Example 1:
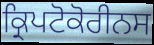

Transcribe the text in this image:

ਕ੍ਰਿਪਟੋਕੋਰੀਨਸ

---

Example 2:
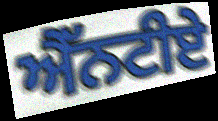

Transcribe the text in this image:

ਐੱਨਟੀਏ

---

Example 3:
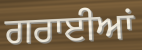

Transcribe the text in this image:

ਗਰਾਈਆਂ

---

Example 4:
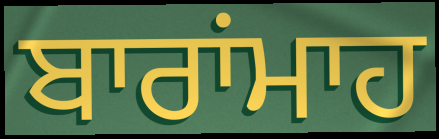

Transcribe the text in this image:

ਬਾਰਾਂਮਾਹ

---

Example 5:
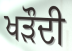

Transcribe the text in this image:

ਖੜੌਦੀ